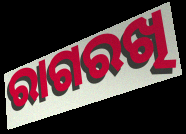
ରାଗରଖି